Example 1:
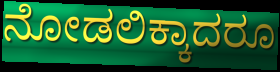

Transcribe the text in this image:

ನೋಡಲಿಕ್ಕಾದರೂ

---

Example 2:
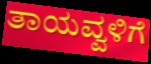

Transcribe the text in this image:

ತಾಯವ್ವಳಿಗೆ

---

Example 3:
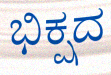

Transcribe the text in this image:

ಭಿಕ್ಷದ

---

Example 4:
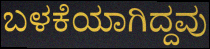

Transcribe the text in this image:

ಬಳಕೆಯಾಗಿದ್ದವು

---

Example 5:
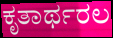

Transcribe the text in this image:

ಕೃತಾರ್ಥರಲ